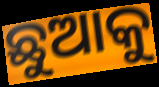
ଛୁଆକୁ